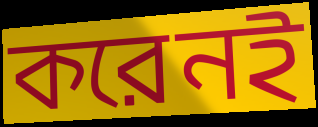
করেনই